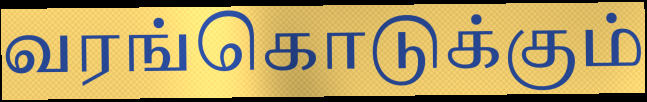
வரங்கொடுக்கும்